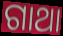
ଗାଥା